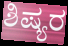
ಶಿಷ್ಯರ